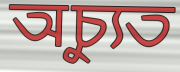
অচ্যুত